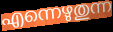
എന്നെഴുതുന്ന